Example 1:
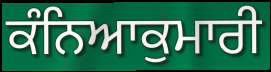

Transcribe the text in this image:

ਕੰਨਿਆਕੁਮਾਰੀ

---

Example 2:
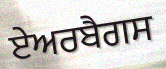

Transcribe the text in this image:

ਏਅਰਬੈਗਸ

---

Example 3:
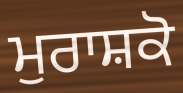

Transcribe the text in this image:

ਮੁਰਾਸ਼ਕੋ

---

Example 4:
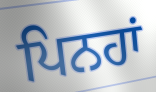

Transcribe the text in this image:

ਪਿਨਹਾਂ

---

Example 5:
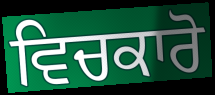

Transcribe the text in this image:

ਵਿਚਕਾਰੋ